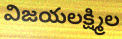
విజయలక్ష్మిల